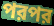
পরপর